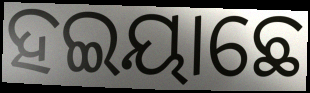
ହଇୟାଛେ